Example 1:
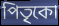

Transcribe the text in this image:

পিতৃকো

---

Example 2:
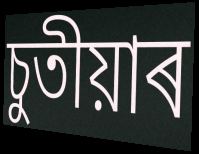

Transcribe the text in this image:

চুতীয়াৰ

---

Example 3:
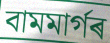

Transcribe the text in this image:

বামমাৰ্গৰ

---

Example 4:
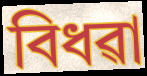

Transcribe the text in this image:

বিধৱা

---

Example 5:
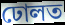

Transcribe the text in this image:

ঢোলত